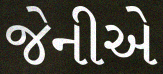
જેનીએ